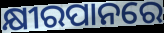
କ୍ଷୀରପାନରେ